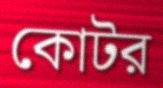
কোটর